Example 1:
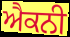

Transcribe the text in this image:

ਐਕਨੀ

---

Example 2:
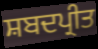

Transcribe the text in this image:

ਸ਼ਬਦਪ੍ਰੀਤ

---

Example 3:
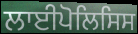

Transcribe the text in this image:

ਲਾਈਪੋਲਿਸਿਸ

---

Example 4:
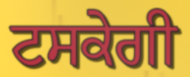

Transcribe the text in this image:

ਟਸਕੇਗੀ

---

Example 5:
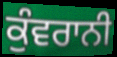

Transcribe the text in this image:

ਕੁੰਵਰਾਨੀ